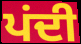
ਪਂਦੀ